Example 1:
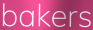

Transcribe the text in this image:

bakers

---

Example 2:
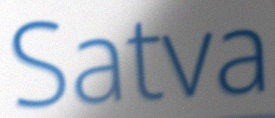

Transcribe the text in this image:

Satva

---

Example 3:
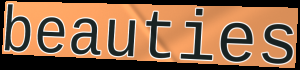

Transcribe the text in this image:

beauties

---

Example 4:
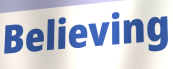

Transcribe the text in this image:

Believing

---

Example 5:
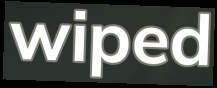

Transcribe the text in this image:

wiped